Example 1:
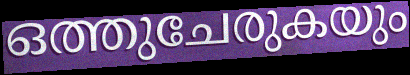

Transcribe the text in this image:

ഒത്തുചേരുകയും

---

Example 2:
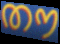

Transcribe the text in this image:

തൗ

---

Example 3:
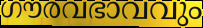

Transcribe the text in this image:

ഗൗരവഭാവവും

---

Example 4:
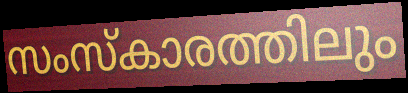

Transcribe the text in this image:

സംസ്കാരത്തിലും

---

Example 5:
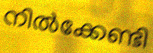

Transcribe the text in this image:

നിൽക്കേണ്ടി